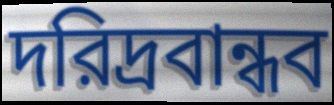
দরিদ্রবান্ধব